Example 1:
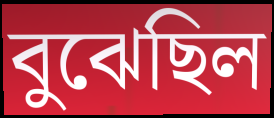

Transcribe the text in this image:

বুঝেছিল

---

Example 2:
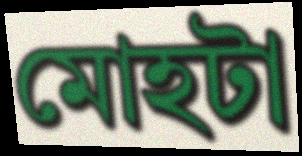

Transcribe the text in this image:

মোহটা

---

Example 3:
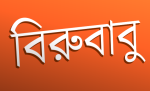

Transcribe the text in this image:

বিরুবাবু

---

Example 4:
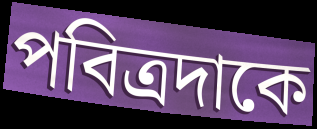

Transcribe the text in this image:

পবিত্রদাকে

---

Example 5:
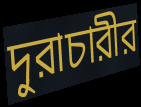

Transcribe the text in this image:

দুরাচারীর